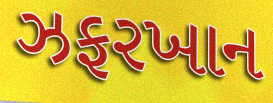
ઝફરખાન